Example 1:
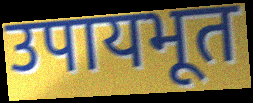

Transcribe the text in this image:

उपायभूत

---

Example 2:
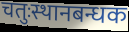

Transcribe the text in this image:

चतुःस्थानबन्धक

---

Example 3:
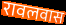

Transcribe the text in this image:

रावलवास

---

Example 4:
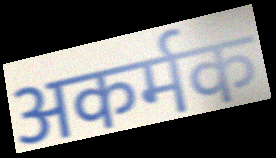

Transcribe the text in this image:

अकर्मक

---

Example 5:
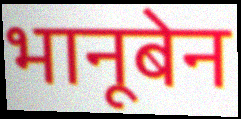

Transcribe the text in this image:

भानूबेन